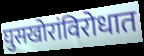
घुसखोरांविरोधात